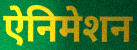
ऐनिमेशन